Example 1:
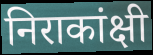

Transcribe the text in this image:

निराकांक्षी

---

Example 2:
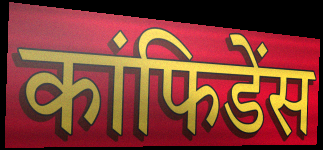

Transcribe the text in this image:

कांफिडेंस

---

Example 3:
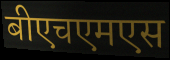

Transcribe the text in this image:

बीएचएमएस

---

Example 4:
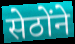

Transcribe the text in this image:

सेठोंने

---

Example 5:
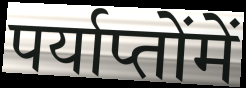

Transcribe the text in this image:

पर्याप्तोंमें